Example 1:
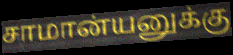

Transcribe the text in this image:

சாமான்யனுக்கு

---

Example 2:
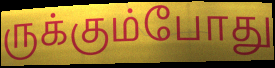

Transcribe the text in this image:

ருக்கும்போது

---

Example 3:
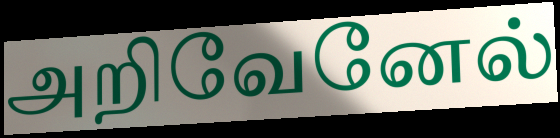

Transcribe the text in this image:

அறிவேனேல்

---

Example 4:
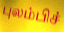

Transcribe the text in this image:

புலம்பிச்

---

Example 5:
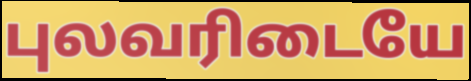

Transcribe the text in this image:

புலவரிடையே